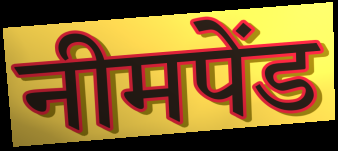
नीमपेंड